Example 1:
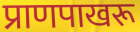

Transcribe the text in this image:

प्राणपाखरू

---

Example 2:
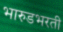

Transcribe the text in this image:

भारुडभरती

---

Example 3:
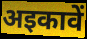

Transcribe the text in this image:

अइकावें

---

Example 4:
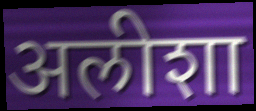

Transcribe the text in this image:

अलीशा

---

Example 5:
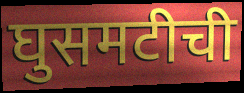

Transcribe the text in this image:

घुसमटीची